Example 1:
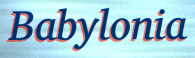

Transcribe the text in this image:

Babylonia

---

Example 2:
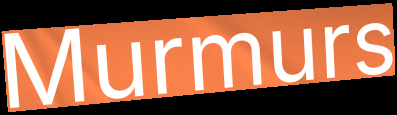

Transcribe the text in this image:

Murmurs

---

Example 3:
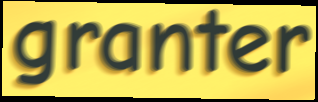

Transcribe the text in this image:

granter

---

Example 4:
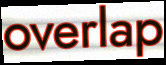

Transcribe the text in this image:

overlap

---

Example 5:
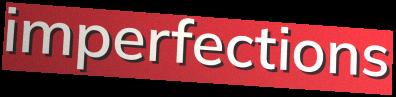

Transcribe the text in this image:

imperfections